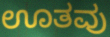
ಊತವು